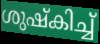
ശുഷ്കിച്ച്